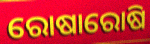
ରୋଷାରୋଷି